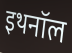
इथनॉल